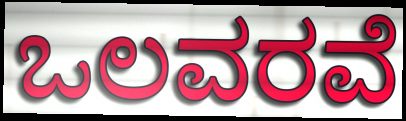
ಒಲವರವೆ